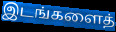
இடங்களைத்